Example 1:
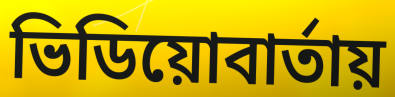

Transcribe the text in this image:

ভিডিয়োবার্তায়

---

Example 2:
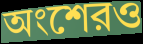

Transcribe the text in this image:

অংশেরও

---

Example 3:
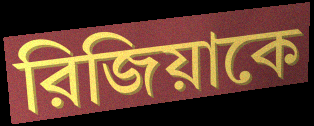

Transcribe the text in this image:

রিজিয়াকে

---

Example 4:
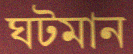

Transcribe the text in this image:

ঘটমান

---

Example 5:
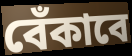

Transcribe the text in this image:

বেঁকাবে